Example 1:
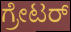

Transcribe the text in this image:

ಗ್ರೇಟರ್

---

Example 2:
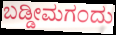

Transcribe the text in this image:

ಬಡ್ಡೀಮಗಂದು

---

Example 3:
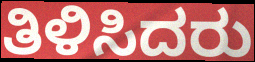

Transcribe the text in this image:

ತಿಳಿಸಿದರು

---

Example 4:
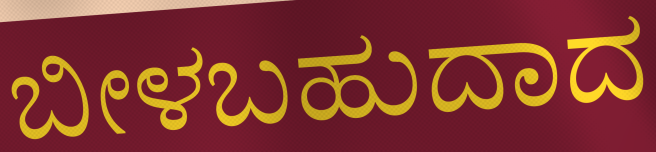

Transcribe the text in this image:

ಬೀಳಬಹುದಾದ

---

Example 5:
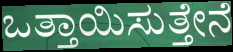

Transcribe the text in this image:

ಒತ್ತಾಯಿಸುತ್ತೇನೆ